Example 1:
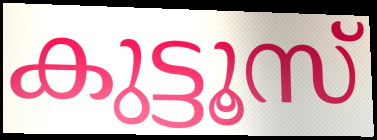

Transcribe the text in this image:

കുട്ടൂസ്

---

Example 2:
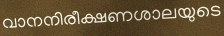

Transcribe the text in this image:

വാനനിരീക്ഷണശാലയുടെ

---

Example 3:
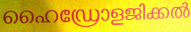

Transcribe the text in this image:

ഹൈഡ്രോളജിക്കൽ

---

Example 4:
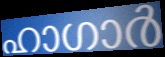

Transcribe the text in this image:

ഹാഗാർ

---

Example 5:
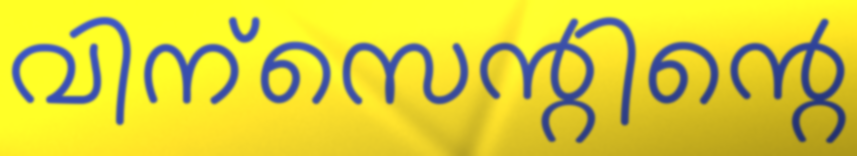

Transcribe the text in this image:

വിന്സെന്റിന്റെ